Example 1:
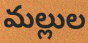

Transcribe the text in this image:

మల్లుల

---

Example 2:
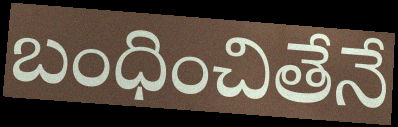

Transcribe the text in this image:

బంధించితేనే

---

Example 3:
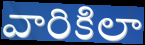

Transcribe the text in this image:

వారికిలా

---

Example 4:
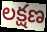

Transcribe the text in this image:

లక్షణ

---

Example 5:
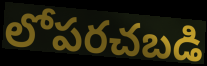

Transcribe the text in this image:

లోపరచబడి